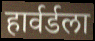
हार्वर्डला